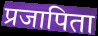
प्रजापिता